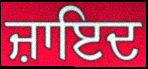
ਜ਼ਾਇਦ